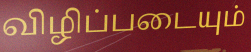
விழிப்படையும்